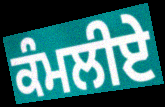
ਕੰਮਲੀਏ